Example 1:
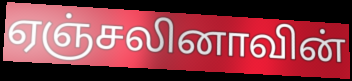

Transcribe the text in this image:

ஏஞ்சலினாவின்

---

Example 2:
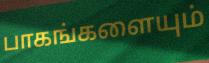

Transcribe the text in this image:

பாகங்களையும்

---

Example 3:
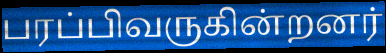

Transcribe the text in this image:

பரப்பிவருகின்றனர்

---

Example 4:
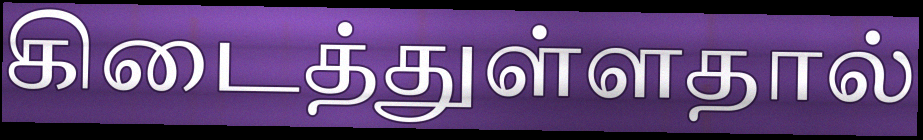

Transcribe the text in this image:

கிடைத்துள்ளதால்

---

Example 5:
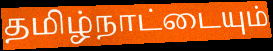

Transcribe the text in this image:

தமிழ்நாட்டையும்